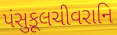
પંસુકૂલચીવરાનિ